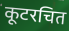
कूटरचित